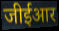
जीईआर